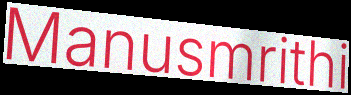
Manusmrithi